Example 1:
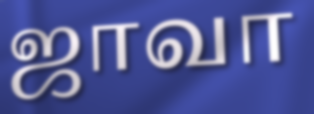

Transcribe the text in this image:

ஜாவா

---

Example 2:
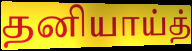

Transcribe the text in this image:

தனியாய்த்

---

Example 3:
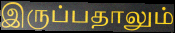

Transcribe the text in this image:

இருப்பதாலும்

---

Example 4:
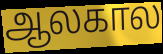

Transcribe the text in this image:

ஆலகால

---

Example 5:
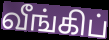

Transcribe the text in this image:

வீங்கிப்